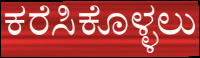
ಕರೆಸಿಕೊಳ್ಳಲು